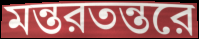
মন্তরতন্তরে